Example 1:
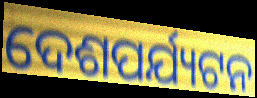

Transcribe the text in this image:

ଦେଶପର୍ଯ୍ୟଟନ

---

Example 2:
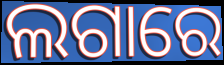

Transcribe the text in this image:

ଲଗାରେ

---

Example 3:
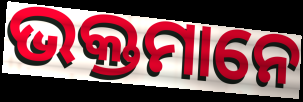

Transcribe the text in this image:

ଭକ୍ତମାନେ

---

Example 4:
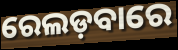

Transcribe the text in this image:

ରେଲଡ଼ବାରେ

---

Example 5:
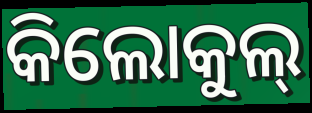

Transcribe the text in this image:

କିଲୋକୁଲ୍